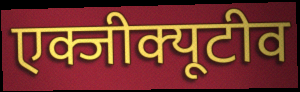
एक्जीक्यूटीव